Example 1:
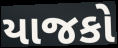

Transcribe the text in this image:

યાજકો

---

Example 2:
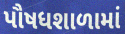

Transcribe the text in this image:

પૌષધશાળામાં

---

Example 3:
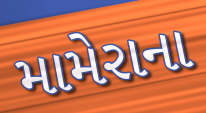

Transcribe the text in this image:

મામેરાના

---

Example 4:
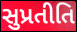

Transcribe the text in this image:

સુપ્રતીતિ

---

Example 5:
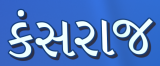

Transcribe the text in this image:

કંસરાજ